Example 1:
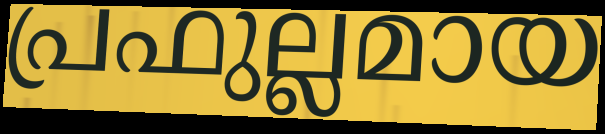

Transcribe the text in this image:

പ്രഫുല്ലമായ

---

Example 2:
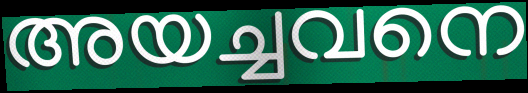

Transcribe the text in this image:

അയച്ചവനെ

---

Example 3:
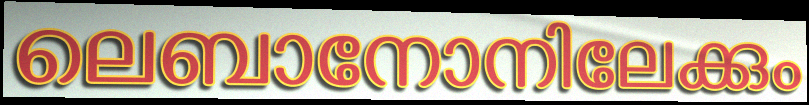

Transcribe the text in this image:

ലെബാനോനിലേക്കും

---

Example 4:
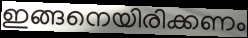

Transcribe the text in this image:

ഇങ്ങനെയിരിക്കണം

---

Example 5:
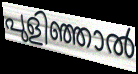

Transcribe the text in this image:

പുളിഞ്ഞാൽ